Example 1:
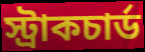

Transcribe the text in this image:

স্ট্রাকচার্ড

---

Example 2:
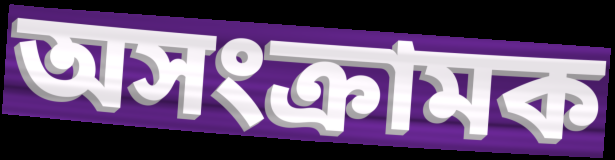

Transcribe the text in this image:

অসংক্রামক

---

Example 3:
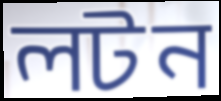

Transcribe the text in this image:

লটন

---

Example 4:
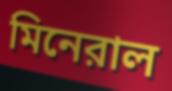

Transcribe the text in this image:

মিনেরাল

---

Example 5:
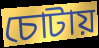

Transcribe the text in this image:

চোটায়